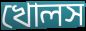
খোলস